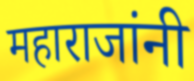
महाराजांनी